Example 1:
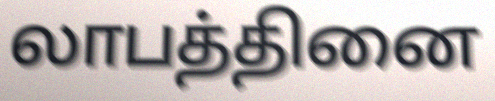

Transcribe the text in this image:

லாபத்தினை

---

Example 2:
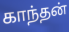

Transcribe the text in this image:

காந்தன்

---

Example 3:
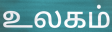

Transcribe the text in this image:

உலகம்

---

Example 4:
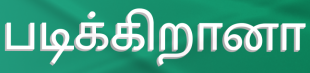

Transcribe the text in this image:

படிக்கிறானா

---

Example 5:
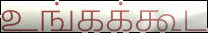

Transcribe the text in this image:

உங்கக்கூட